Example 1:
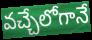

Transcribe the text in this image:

వచ్చేలోగానే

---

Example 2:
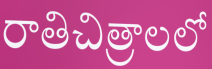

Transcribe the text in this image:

రాతిచిత్రాలలో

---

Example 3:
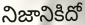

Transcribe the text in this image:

నిజానికిదో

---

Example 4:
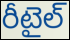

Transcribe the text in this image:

రీటైల్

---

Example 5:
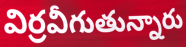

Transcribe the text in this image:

విర్రవీగుతున్నారు